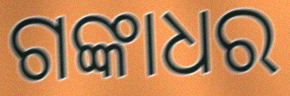
ଗଙ୍କାଧର